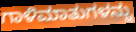
ಗಾಳಿಮಾತುಗಳನ್ನು